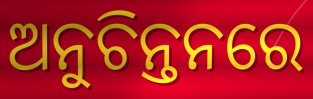
ଅନୁଚିନ୍ତନରେ